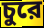
চুরে